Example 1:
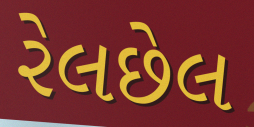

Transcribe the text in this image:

રેલછેલ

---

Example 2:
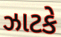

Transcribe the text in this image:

ઝાટકે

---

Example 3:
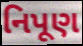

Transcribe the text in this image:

નિપૂણ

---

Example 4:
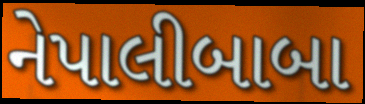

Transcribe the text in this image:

નેપાલીબાબા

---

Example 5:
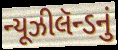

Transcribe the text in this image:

ન્યૂઝીલૅન્ડનું